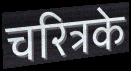
चरित्रके